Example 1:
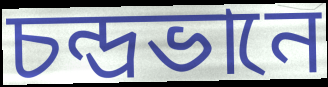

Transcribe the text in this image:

চন্দ্ৰভানে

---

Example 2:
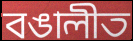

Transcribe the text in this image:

বঙালীত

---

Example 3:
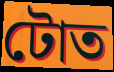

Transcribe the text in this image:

টোত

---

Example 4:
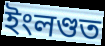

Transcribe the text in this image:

ইংলণ্ডত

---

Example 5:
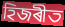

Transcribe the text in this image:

হিজৰীত